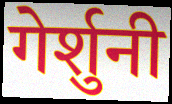
गेर्शुनी